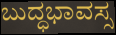
ಬುದ್ಧಭಾವಸ್ಸ